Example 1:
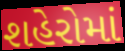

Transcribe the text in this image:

શહેરોમાં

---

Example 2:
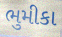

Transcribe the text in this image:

ભુમીકા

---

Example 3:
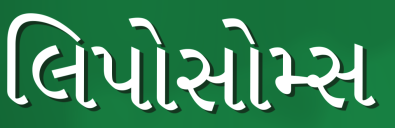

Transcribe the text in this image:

લિપોસોમ્સ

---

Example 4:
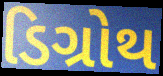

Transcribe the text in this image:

ડિગ્રોથ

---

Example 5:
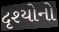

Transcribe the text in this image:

દૃશ્યોનો